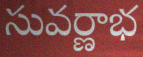
సువర్ణాభ